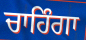
ਚਾਹਿੰਗਾ